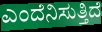
ಎಂದೆನಿಸುತ್ತಿದೆ